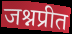
जश्नप्रीत